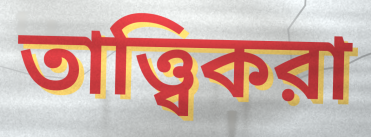
তাত্ত্বিকরা